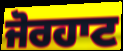
ਜੋਰਹਾਟ